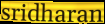
sridharan